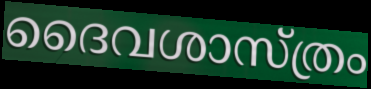
ദൈവശാസ്ത്രം